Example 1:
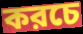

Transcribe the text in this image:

করচে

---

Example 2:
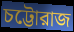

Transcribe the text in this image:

চট্টোরাজ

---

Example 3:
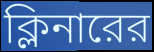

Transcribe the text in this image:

ক্লিনারের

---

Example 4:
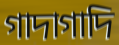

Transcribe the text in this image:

গাদাগাদি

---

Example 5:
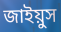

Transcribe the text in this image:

জাইয়ুস